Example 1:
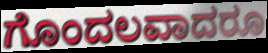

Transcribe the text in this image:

ಗೊಂದಲವಾದರೂ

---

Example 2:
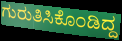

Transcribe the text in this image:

ಗುರುತಿಸಿಕೊಂಡಿದ್ದ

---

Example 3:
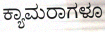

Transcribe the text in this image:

ಕ್ಯಾಮರಾಗಳೂ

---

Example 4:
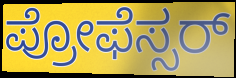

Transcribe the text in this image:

ಪ್ರೋಫೆಸ್ಸರ್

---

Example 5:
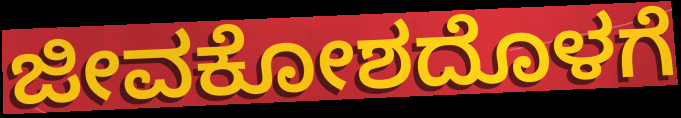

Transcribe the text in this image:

ಜೀವಕೋಶದೊಳಗೆ